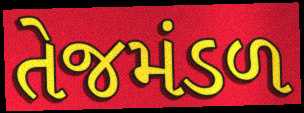
તેજમંડળ